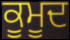
ਕੂਮੂਦ